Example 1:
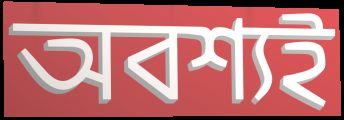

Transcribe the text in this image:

অবশ্যই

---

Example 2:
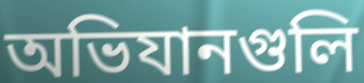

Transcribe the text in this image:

অভিযানগুলি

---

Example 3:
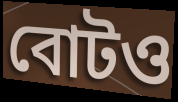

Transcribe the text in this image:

বোটও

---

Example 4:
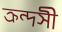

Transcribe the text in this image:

ক্রন্দসী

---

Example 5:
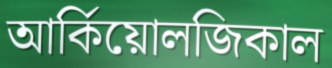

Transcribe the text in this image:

আর্কিয়োলজিকাল